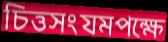
চিত্তসংযমপক্ষে